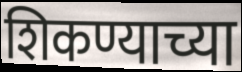
शिकण्याच्या